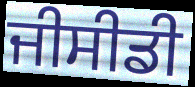
ਜੀਸੀਡੀ